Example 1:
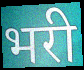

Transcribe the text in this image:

भरी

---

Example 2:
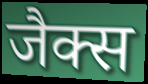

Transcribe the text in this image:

जैक्स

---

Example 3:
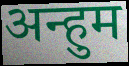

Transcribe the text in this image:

अन्हुम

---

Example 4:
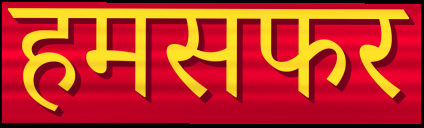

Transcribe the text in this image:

हमसफर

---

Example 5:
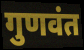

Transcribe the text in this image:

गुणवंत